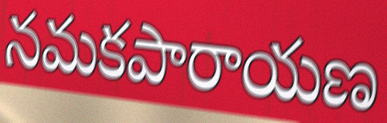
నమకపారాయణ